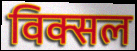
विक्सल